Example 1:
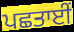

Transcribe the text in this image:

ਪਛਤਾਈਂ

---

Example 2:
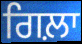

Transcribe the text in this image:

ਗਿਲ਼ਾ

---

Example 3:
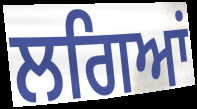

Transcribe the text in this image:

ਲਗਿਆਂ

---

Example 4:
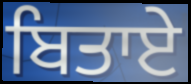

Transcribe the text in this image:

ਬਿਤਾਏ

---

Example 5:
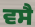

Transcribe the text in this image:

ਵਸੈ